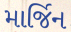
માર્જિન